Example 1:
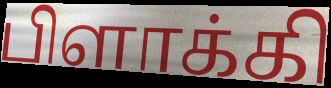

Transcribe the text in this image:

பிளாக்கி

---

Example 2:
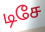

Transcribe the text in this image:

டிசே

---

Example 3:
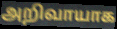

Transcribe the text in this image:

அறிவாயாக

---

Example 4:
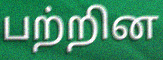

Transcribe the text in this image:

பற்றின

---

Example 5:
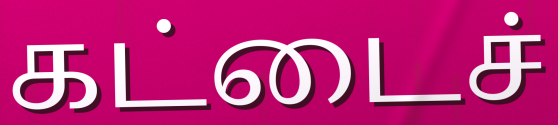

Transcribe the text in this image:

கட்டைச்